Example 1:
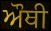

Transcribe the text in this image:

ਔਥੀ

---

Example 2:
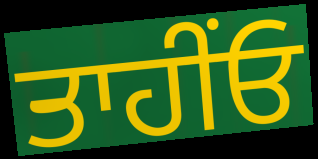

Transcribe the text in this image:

ਤਾਹੀਂਓ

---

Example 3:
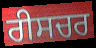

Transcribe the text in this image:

ਰੀਸਚਰ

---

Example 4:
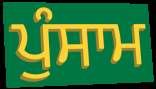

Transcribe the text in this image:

ਪੁੰਸਾਮ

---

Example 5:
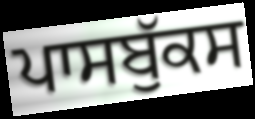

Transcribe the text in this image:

ਪਾਸਬੁੱਕਸ